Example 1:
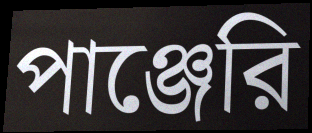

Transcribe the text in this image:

পাঞ্জেরি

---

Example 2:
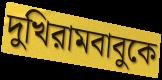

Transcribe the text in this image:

দুখিরামবাবুকে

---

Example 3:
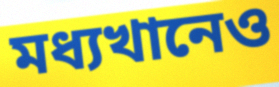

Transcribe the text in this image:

মধ্যখানেও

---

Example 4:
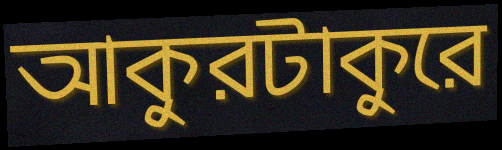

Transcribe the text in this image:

আকুরটাকুরে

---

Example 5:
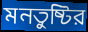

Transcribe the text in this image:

মনতুষ্টির